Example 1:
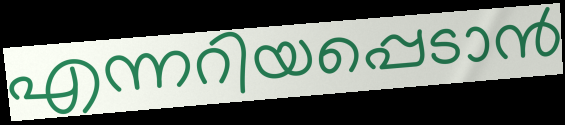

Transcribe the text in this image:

എന്നറിയപ്പെടാൻ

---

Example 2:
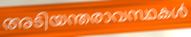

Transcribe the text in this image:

അടിയന്തരാവസ്ഥകൾ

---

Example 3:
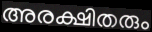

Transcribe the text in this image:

അരക്ഷിതരും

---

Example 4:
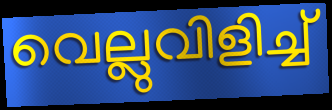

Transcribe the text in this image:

വെല്ലുവിളിച്ച്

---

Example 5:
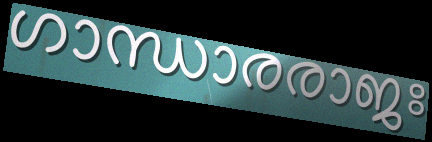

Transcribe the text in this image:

ഗാന്ധാരരാജഃ